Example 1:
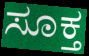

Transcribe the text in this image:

ಸೂಕ್ತ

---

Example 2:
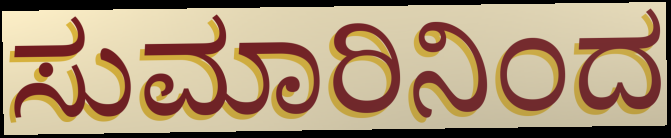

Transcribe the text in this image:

ಸುಮಾರಿನಿಂದ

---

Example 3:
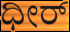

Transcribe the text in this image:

ಧೀರ್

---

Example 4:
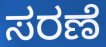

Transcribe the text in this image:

ಸರಣೆ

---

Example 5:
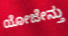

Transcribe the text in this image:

ಯೋಜೇನ್ತು